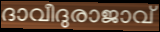
ദാവീദുരാജാവ്